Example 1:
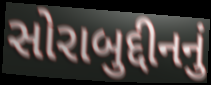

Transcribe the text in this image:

સોરાબુદ્દીનનું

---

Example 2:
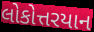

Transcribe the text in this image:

લોકોત્તરયાન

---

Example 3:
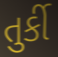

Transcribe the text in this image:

તુર્કી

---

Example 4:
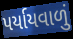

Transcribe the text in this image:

પર્યાયવાળું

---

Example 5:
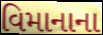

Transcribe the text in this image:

વિમાનાના